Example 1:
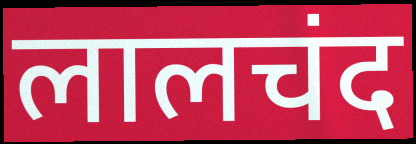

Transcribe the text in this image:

लालचंद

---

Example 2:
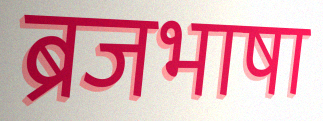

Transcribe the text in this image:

ब्रजभाषा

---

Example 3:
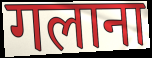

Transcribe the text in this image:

गलाना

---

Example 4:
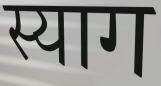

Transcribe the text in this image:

स्याग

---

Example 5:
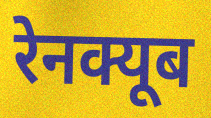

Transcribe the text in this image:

रेनक्यूब